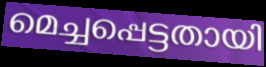
മെച്ചപ്പെട്ടതായി